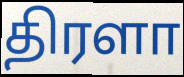
திரளா